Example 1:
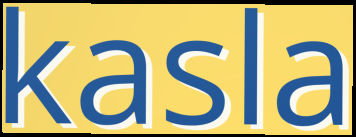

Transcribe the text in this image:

kasla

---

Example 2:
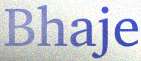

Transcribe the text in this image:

Bhaje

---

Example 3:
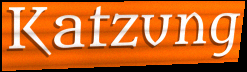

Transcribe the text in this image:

Katzung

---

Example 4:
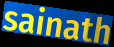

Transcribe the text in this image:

sainath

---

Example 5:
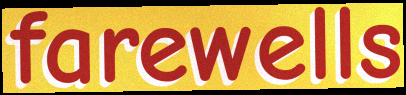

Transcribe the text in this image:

farewells